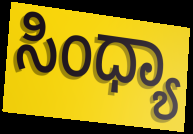
ಸಿಂಧ್ಯಾ